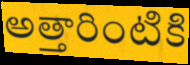
అత్తారింటికి